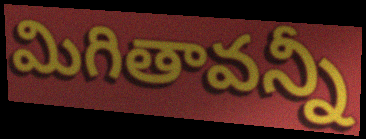
మిగితావన్నీ